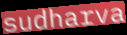
sudharva